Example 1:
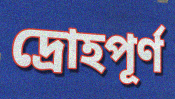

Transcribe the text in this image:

দ্রোহপূর্ণ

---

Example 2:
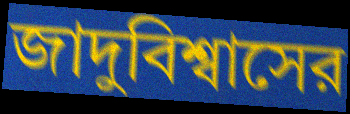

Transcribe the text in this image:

জাদুবিশ্বাসের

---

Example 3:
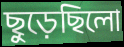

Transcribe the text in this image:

ছুড়েছিলো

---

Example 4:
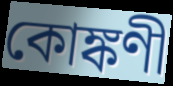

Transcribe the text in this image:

কোঙ্কণী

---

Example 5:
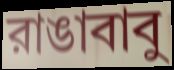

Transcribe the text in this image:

রাঙাবাবু